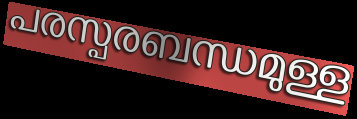
പരസ്പരബന്ധമുള്ള